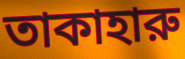
তাকাহারু